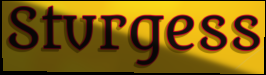
Sturgess